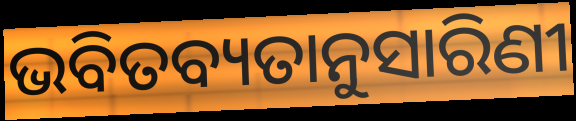
ଭବିତବ୍ୟତାନୁସାରିଣୀ